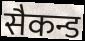
सैकन्ड